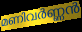
മണിവർണ്ണൻ